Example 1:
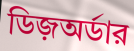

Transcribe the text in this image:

ডিজ়অর্ডার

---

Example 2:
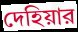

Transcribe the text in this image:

দেহিয়ার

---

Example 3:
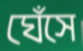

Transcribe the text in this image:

ঘেঁসে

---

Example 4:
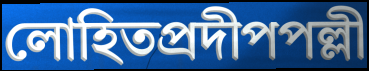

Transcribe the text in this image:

লোহিতপ্রদীপপল্লী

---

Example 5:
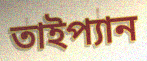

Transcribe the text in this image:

তাইপ্যান